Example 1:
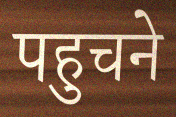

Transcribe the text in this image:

पहुचने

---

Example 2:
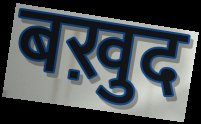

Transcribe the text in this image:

बख़ुद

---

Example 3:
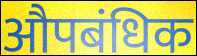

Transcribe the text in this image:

औपबंधिक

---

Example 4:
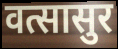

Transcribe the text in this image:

वत्सासुर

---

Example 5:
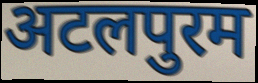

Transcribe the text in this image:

अटलपुरम